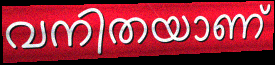
വനിതയാണ്